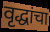
वृद्धांचा